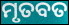
ମୃତବତ